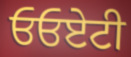
ਓਓਏਟੀ